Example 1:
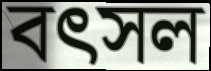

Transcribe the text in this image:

বৎসল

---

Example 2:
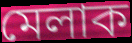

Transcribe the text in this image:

মেলাক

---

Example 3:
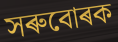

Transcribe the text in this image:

সৰুবোৰক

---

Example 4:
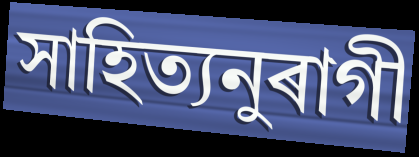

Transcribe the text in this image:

সাহিত্য়নুৰাগী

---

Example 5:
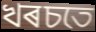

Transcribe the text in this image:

খৰচতে